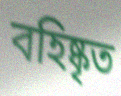
বহিষ্কৃত